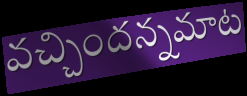
వచ్చిందన్నమాట